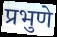
प्रभुणे